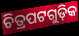
ଚିତ୍ରପଟଗୁଡ଼ିକ